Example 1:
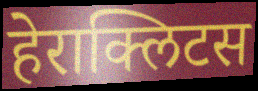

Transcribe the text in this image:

हेराक्लिटस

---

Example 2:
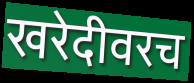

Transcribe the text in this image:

खरेदीवरच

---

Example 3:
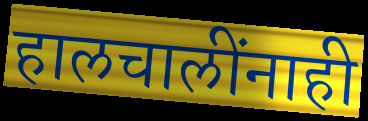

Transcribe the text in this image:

हालचालींनाही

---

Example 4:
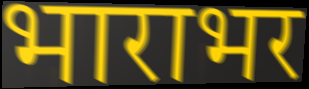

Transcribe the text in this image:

भाराभर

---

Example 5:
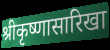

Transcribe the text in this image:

श्रीकृष्णासारिखा